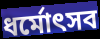
ধর্মোৎসব